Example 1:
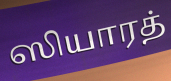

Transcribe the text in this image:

ஸியாரத்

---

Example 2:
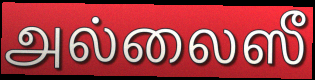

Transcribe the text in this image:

அல்லைஸீ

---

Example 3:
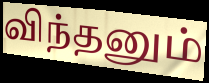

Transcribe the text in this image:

விந்தனும்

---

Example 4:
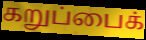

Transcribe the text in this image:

கறுப்பைக்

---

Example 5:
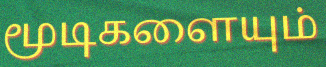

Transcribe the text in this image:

மூடிகளையும்